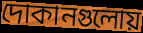
দোকানগুলোয়